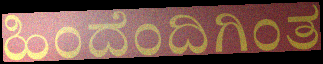
ಹಿಂದೆಂದಿಗಿಂತ